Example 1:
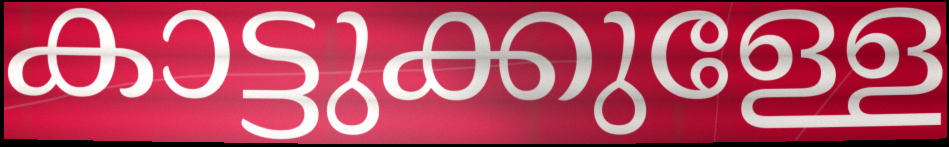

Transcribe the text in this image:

കാട്ടുക്കുള്ളേ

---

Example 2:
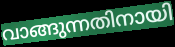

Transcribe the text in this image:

വാങ്ങുന്നതിനായി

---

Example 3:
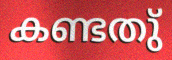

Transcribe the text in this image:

കണ്ടതു്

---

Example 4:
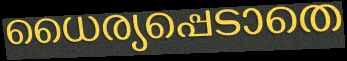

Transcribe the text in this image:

ധൈര്യപ്പെടാതെ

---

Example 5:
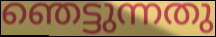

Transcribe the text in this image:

ഞെട്ടുന്നതു